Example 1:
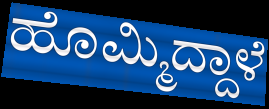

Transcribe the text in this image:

ಹೊಮ್ಮಿದ್ದಾಳೆ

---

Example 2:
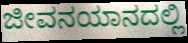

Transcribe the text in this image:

ಜೀವನಯಾನದಲ್ಲಿ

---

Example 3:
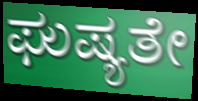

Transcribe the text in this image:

ಘುಷ್ಯತೇ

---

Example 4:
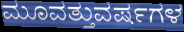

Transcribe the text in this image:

ಮೂವತ್ತುವರ್ಷಗಳ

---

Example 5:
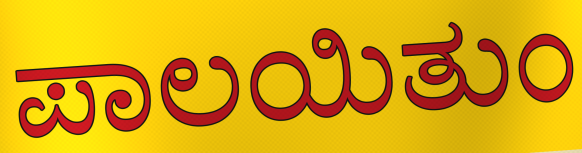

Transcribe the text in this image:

ಪಾಲಯಿತುಂ